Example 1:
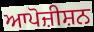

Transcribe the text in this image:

ਆਪੋਜ਼ੀਸ਼ਨ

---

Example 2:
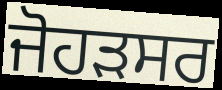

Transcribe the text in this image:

ਜੋਹੜਸਰ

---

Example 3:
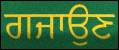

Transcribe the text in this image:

ਗਜਾਉਣ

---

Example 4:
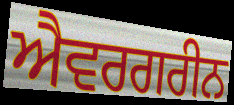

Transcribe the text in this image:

ਐਵਰਗਰੀਨ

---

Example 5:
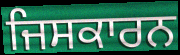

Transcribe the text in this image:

ਜਿਸਕਾਰਨ